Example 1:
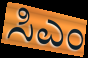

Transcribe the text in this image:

ಸಿಎಂ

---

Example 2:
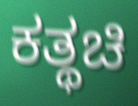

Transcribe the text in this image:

ಕತ್ಥಚಿ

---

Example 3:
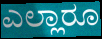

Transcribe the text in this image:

ಎಲ್ಲಾರೂ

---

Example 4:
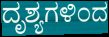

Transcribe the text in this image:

ದೃಶ್ಯಗಳಿಂದ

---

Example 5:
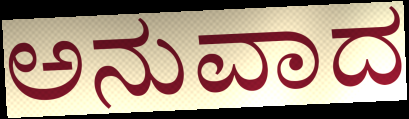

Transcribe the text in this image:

ಅನುವಾದ